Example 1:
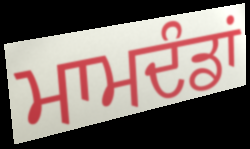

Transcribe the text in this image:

ਮਾਮਦੰਡਾਂ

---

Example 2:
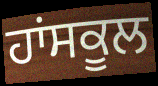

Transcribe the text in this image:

ਹਾਂਸਕੂਲ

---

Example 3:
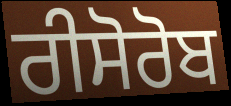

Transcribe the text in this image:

ਰੀਸੋਰੋਬ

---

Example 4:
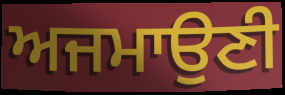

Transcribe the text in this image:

ਅਜਮਾਉਣੀ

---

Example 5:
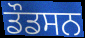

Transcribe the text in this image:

ਡੌਡਸਨ